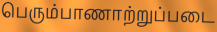
பெரும்பாணாற்றுப்படை